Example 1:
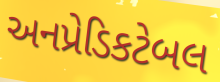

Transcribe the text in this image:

અનપ્રેડિકટેબલ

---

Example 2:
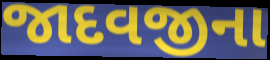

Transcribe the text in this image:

જાદવજીના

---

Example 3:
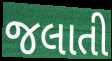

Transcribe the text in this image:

જલાતી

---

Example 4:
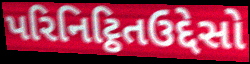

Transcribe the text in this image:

પરિનિટ્ઠિતઉદ્દેસો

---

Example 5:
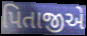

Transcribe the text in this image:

પિતાજીએ